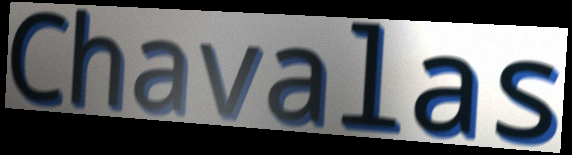
Chavalas